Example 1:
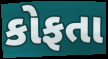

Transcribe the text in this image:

કોફતા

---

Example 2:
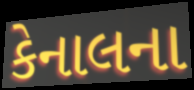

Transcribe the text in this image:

કેનાલના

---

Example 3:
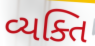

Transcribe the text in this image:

વ્યક્તિ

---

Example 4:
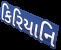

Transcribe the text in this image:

કિરિયાનિ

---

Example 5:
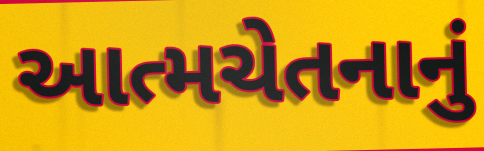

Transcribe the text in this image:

આત્મચેતનાનું